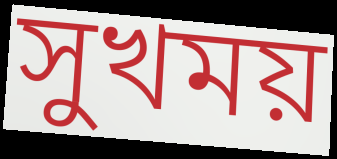
সুখময়